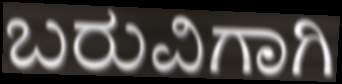
ಬರುವಿಗಾಗಿ